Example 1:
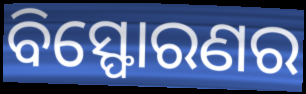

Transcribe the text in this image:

ବିସ୍ଫୋରଣର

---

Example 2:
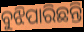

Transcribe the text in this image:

ବୁଝିପାରିଛନ୍ତି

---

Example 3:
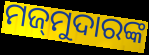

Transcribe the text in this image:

ମଜ୍‍ମୁଦାରଙ୍କ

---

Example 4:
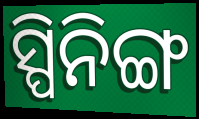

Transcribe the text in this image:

ସ୍ପିନିଙ୍ଗ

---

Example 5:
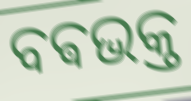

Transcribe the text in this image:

ବଵଭକ୍ତ